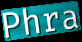
Phra